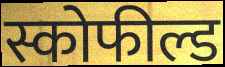
स्कोफील्ड